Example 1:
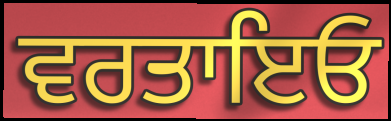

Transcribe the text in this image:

ਵਰਤਾਇਓ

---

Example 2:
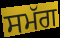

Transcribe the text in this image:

ਸਮੱਗ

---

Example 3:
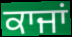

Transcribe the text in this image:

ਕਾਜਾਂ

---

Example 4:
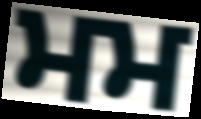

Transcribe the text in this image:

ਮਮ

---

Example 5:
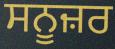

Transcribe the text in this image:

ਸਨੂਜ਼ਰ